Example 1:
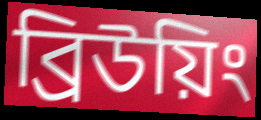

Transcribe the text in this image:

ব্রিউয়িং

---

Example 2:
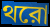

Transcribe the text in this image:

থরো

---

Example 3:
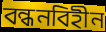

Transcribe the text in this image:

বন্ধনবিহীন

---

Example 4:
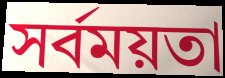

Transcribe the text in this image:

সর্বময়তা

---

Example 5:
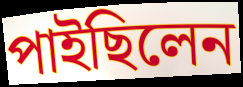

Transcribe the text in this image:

পাইছিলেন